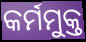
କର୍ମମୁକ୍ତ